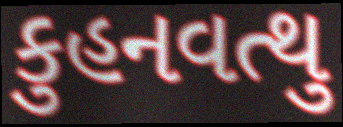
કુહનવત્થુ